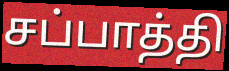
சப்பாத்தி